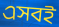
এসবই